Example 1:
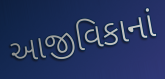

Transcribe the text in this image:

આજીવિકાનાં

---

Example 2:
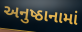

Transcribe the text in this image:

અનુષ્ઠાનામાં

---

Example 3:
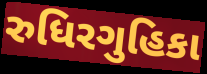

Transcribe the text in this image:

રુધિરગુહિકા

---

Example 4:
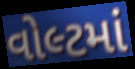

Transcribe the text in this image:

વોલ્ટમાં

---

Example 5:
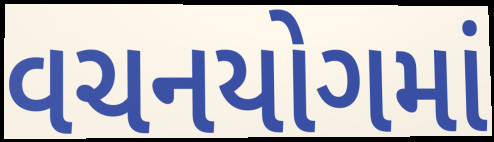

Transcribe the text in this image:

વચનયોગમાં